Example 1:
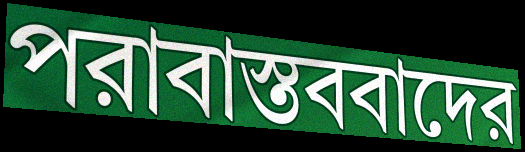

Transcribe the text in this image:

পরাবাস্তববাদের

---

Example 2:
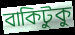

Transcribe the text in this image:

বাকিটুকু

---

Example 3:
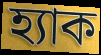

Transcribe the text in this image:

হ্যাক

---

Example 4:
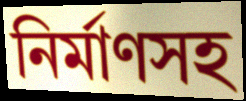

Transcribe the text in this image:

নির্মাণসহ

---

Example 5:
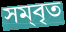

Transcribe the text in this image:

সম্‌বৃত